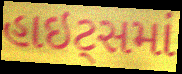
હાઇટ્સમાં